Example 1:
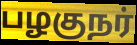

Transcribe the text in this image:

பழகுநர்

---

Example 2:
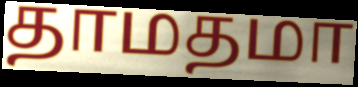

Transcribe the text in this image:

தாமதமா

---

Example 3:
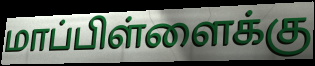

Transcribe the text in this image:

மாப்பிள்ளைக்கு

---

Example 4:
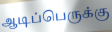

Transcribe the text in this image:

ஆடிப்பெருக்கு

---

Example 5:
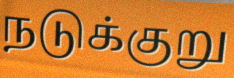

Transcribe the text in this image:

நடுக்குறு